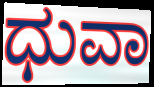
ಧುವಾ